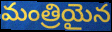
మంత్రియైన